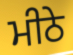
ਮੀਠੇ